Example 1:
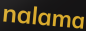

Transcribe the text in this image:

nalama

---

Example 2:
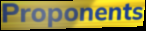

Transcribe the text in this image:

Proponents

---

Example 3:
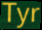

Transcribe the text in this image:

Tyr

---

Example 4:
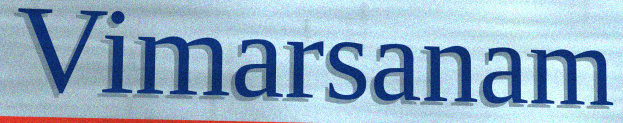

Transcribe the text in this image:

Vimarsanam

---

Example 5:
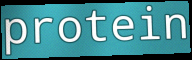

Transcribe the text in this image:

protein